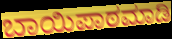
ಬಾಯಿಪಾಠಮಾಡಿ